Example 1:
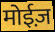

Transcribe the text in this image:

मोईज़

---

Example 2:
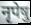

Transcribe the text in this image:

नृपेषु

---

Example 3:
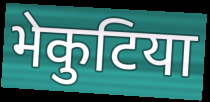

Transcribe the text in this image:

भेकुटिया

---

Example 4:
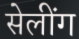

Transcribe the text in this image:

सेलींग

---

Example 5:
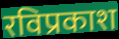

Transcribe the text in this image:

रविप्रकाश